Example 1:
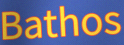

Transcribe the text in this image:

Bathos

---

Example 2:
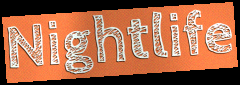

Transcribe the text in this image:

Nightlife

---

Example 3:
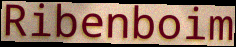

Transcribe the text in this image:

Ribenboim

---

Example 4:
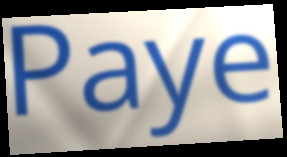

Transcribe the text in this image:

Paye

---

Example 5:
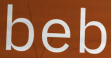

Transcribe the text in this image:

beb